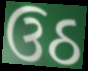
ઉઠ